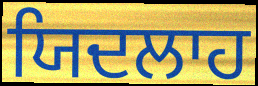
ਯਿਦਲਾਹ